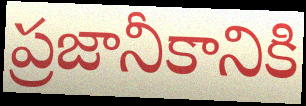
ప్రజానీకానికి